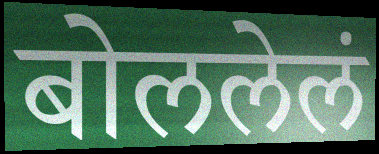
बोललेलं